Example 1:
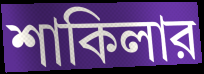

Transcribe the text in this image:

শাকিলার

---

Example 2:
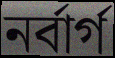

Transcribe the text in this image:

নর্বার্গ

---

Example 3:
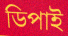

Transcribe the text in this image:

ডিপাই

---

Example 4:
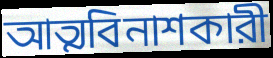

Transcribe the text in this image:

আত্মবিনাশকারী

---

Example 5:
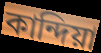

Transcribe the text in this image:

কান্দিয়া